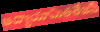
ఆద్యాయామితతేజసే